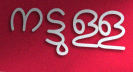
നട്ടുള്ള